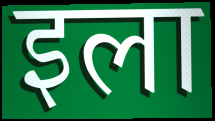
इला